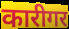
कारीगर